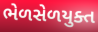
ભેળસેળયુક્ત